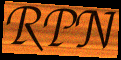
RPN